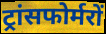
ट्रांसफोर्मरों